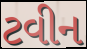
ટવીન